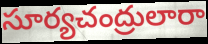
సూర్యచంద్రులారా